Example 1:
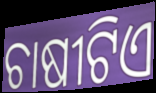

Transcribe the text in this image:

ଚାଷୀଟିଏ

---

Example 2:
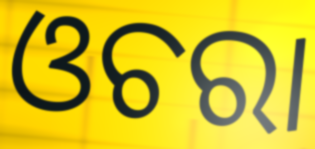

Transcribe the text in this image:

ଓଚରା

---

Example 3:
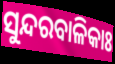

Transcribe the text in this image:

ସୁନ୍ଦରବାଳିକାଃ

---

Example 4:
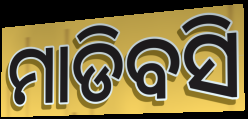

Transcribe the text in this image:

ମାଡିବସି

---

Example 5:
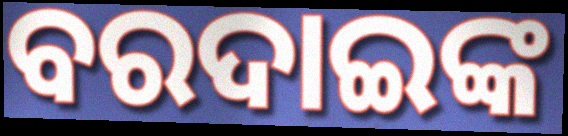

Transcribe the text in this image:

ବରଦାଇଙ୍କ